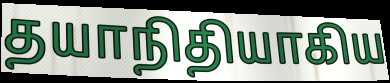
தயாநிதியாகிய